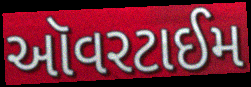
ઑવરટાઈમ